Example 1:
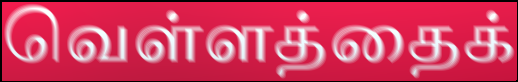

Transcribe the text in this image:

வெள்ளத்தைக்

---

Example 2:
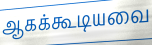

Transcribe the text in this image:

ஆகக்கூடியவை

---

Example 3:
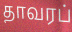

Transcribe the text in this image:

தாவரப்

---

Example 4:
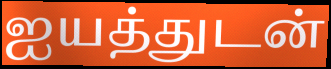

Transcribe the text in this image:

ஐயத்துடன்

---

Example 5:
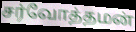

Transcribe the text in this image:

சர்வோத்தமன்